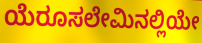
ಯೆರೂಸಲೇಮಿನಲ್ಲಿಯೇ